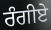
ਰੰਗੀਏ